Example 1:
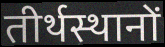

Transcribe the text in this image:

तीर्थस्थानों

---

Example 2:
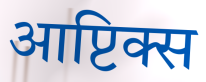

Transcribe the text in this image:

आप्टिक्स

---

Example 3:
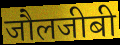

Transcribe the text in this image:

जौलजीबी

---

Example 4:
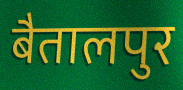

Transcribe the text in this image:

बैतालपुर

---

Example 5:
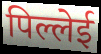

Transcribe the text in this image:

पिल्लेई